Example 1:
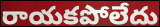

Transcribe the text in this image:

రాయకపోలేదు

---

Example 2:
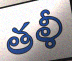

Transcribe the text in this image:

తళీ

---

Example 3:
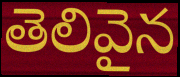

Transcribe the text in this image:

తెలివైన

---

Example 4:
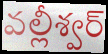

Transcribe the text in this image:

వల్లీశ్వర్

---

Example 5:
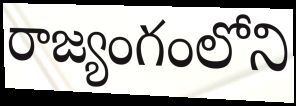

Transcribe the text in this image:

రాజ్యంగంలోని